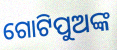
ଗୋଟିପୁଅଙ୍କ